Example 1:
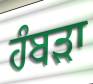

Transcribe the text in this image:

ਹੰਬੜਾ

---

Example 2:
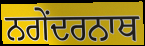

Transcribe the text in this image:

ਨਗੇਂਦਰਨਾਥ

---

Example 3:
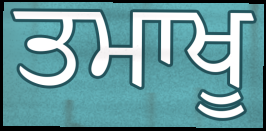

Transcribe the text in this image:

ਤਮਾਖੂ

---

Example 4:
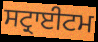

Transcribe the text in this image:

ਸਟ੍ਰਾਈਟਮ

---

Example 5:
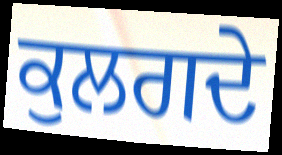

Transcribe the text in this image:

ਕੁਲਗਦੇ